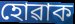
হোৱাক